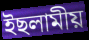
ইছলামীয়